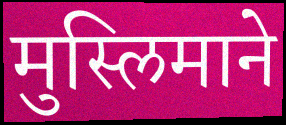
मुस्लिमाने